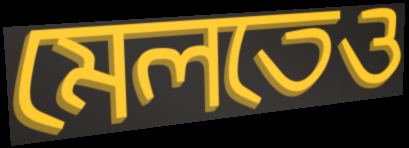
মেলতেও